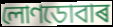
লোণডোবাৰ